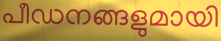
പീഡനങ്ങളുമായി